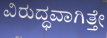
ವಿರುದ್ಧವಾಗಿತ್ತೇ